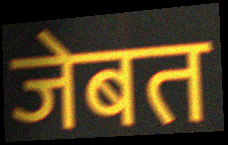
जेबत